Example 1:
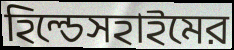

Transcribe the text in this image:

হিল্ডেসহাইমের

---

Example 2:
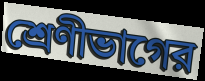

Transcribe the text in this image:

শ্রেণীভাগের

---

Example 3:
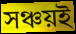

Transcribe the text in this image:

সঞ্চয়ই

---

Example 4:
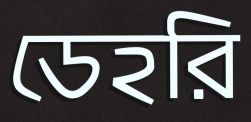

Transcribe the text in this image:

ডেহরি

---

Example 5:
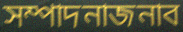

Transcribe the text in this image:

সম্পাদনাজনাব